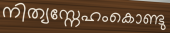
നിത്യസ്നേഹംകൊണ്ടു